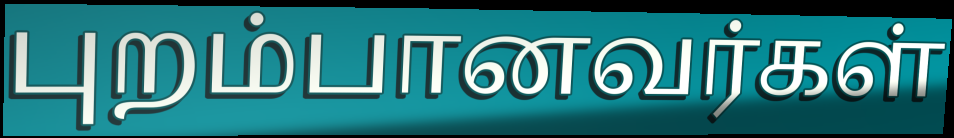
புறம்பானவர்கள்